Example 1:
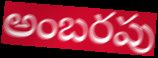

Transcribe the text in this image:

అంబరపు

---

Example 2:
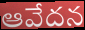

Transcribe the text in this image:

ఆవేదన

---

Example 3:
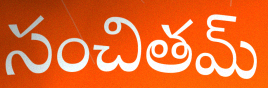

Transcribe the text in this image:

సంచితమ్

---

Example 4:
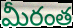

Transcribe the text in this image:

మీరంత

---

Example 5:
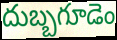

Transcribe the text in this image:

దుబ్బగూడెం